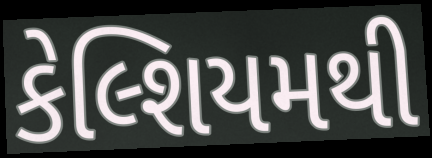
કેલ્શિયમથી